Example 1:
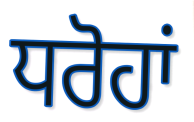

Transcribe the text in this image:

ਧਰੋਹਾਂ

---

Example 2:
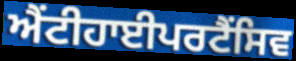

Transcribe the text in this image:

ਐਂਟੀਹਾਈਪਰਟੈਂਸਿਵ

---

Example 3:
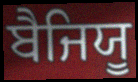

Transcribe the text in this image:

ਬੈਜਿਯੂ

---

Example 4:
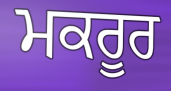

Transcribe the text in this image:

ਮਕਰੂਰ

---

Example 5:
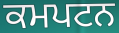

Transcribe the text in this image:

ਕਮਪਟਨ